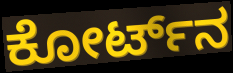
ಕೋರ್ಟ್‌ನ